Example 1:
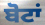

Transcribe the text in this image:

ਬੋਟਾਂ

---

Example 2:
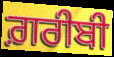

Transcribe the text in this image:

ਗ਼ਰੀਬੀ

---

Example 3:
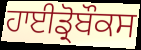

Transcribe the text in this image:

ਹਾਈਡ੍ਰੋਬੌਕਸ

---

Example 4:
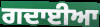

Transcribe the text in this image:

ਗਦਾਈਆ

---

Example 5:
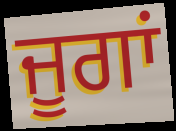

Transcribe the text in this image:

ਜੂਗਾਂ